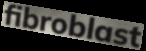
fibroblast